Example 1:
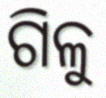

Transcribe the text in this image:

ଗିଳୁ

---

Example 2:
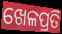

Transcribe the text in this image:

ଖେଳପ୍ରତି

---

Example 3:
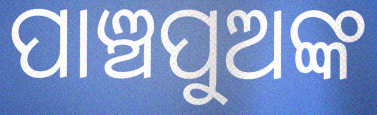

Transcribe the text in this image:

ପାଞ୍ଚପୁଅଙ୍କ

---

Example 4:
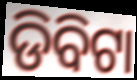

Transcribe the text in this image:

ଡିବିଟା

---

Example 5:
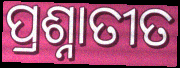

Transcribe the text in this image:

ପ୍ରଶ୍ନାତୀତ